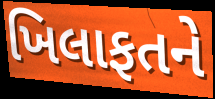
ખિલાફતને